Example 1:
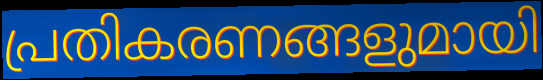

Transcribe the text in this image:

പ്രതികരണങ്ങളുമായി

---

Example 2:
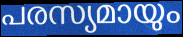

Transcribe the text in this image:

പരസ്യമായും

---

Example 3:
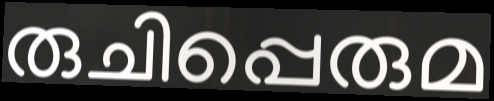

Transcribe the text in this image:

രുചിപ്പെരുമ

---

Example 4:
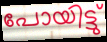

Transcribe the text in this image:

പോയിട്ടു്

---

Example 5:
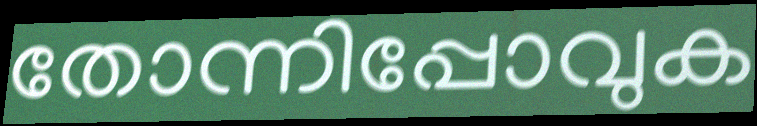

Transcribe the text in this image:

തോന്നിപ്പോവുക